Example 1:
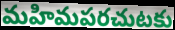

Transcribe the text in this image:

మహిమపరచుటకు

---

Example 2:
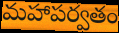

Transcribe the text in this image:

మహాపర్వతం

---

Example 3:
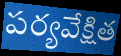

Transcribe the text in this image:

పర్యవేక్షిత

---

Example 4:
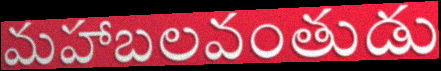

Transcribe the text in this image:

మహాబలవంతుడు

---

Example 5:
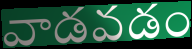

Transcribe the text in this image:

వాడవడం